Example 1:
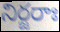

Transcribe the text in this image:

నిర్జరాః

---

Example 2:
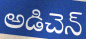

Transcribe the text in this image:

అడిచెన్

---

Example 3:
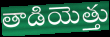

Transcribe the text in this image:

తాడియెత్తు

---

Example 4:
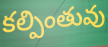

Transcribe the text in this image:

కల్పింతువు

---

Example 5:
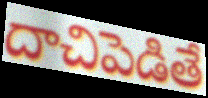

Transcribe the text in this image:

దాచిపెడితే